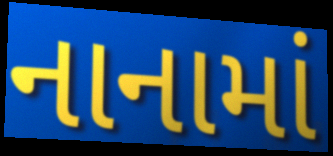
નાનામાં